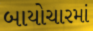
બાયોચારમાં